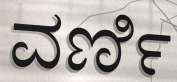
ವರ್ಣಿ